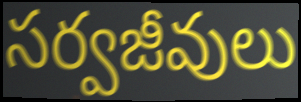
సర్వజీవులు